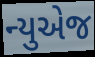
ન્યુએજ